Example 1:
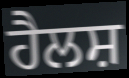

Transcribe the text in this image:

ਹੈਲਸ਼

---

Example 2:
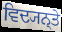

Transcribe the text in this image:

ਵਿਦ੍ਯਨ੍ਤੇ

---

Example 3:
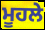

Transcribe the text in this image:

ਮੂਹਲੇ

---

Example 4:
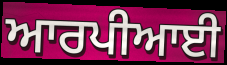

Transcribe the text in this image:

ਆਰਪੀਆਈ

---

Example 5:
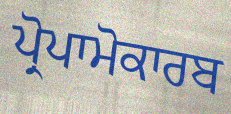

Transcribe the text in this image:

ਪ੍ਰੋਪਾਮੋਕਾਰਬ